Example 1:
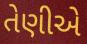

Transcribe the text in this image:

તેણીએ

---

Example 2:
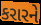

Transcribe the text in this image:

કરારને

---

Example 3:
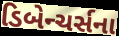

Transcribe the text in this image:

ડિબેન્ચર્સના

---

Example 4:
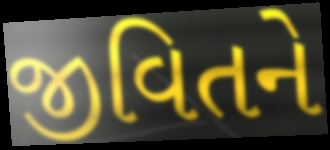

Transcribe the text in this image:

જીવિતને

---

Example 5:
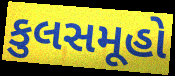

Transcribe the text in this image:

કુલસમૂહો